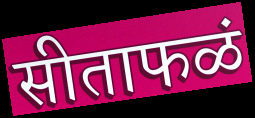
सीताफळं